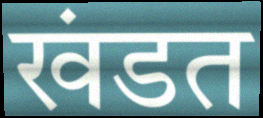
खंडत